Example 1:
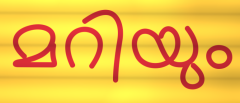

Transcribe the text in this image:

മറിയും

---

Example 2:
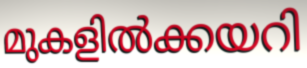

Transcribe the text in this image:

മുകളിൽക്കയറി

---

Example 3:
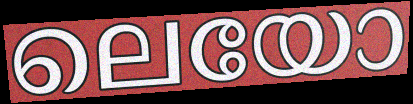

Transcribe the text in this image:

ലെയോ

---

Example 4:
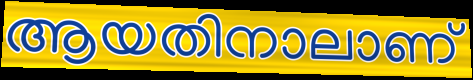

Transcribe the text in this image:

ആയതിനാലാണ്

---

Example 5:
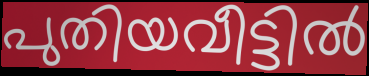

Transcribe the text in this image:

പുതിയവീട്ടിൽ